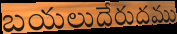
బయలుదేరుదము